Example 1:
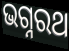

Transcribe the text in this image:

ଭଗ୍ନରଥ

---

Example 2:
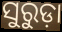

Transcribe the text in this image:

ସୁରୁଡ଼ା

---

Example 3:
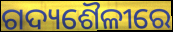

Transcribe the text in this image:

ଗଦ୍ୟଶୈଳୀରେ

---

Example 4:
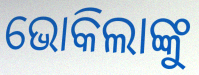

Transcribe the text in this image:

ଭୋକିଲାଙ୍କୁ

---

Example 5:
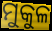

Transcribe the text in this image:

ମୁକୁଳ